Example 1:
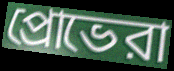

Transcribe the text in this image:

প্রোভেরা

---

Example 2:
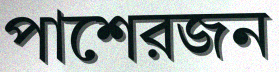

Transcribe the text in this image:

পাশেরজন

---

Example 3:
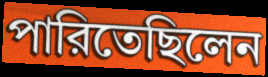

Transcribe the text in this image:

পারিতেছিলেন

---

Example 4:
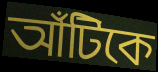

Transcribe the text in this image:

আঁটিকে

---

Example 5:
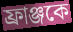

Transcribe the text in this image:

ফ্রাঞ্জকে